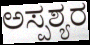
ಅಸ್ಪಶ್ಯರ